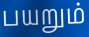
பயறும்